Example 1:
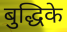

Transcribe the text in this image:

बुद्धिके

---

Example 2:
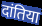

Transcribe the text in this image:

दांतिया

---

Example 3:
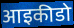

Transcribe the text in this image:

आइकीडो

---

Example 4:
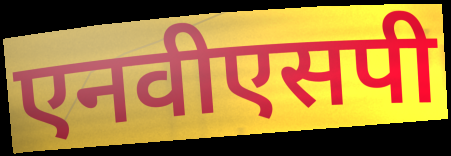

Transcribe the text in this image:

एनवीएसपी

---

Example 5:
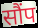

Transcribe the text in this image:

सौंप